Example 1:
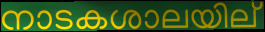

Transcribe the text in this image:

നാടകശാലയില്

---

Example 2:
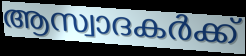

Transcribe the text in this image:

ആസ്വാദകർക്ക്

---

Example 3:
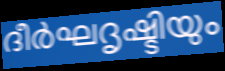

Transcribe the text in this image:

ദീർഘദൃഷ്ടിയും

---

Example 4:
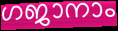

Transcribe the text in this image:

ഗജാനാം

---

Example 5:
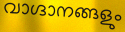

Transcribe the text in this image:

വാഗ്ദാനങ്ങളും